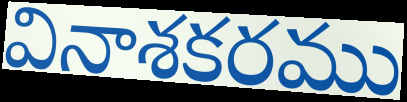
వినాశకరము